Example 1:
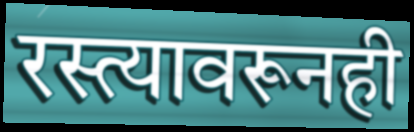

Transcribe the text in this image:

रस्त्यावरूनही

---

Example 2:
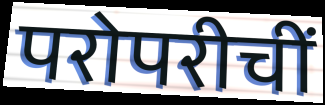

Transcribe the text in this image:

परोपरीचीं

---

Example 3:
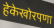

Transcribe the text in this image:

हेकेखोरपणा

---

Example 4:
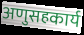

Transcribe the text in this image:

अणुसहकार्य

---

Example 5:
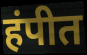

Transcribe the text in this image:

हंपीत